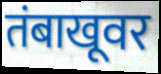
तंबाखूवर